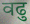
वढु